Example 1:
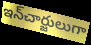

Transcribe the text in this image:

ఇన్‌చార్జులుగా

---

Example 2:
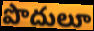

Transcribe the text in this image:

పొదులూ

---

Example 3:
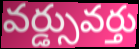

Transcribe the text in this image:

వర్డ్సువర్తు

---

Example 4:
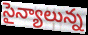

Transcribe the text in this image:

సైన్యాలున్న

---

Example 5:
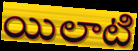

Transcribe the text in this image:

యిలాటి